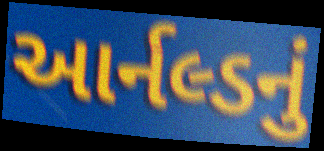
આર્નલ્ડનું